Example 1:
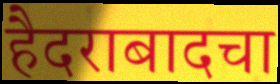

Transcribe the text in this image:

हैदराबादचा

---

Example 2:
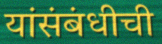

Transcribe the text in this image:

यांसंबंधीची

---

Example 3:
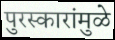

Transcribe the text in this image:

पुरस्कारांमुळे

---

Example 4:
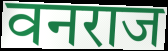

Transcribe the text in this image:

वनराज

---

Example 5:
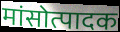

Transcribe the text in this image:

मांसोत्पादक